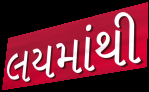
લયમાંથી